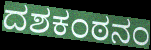
ದಶಕಂಠನಂ